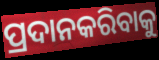
ପ୍ରଦାନକରିବାକୁ